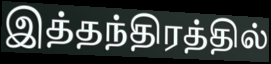
இத்தந்திரத்தில்